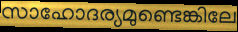
സാഹോദര്യമുണ്ടെങ്കിലേ